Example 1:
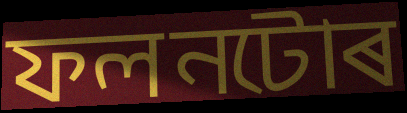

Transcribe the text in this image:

ফলনটোৰ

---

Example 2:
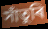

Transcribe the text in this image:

সাঁতুৰি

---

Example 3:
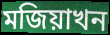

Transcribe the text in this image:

মজিয়াখন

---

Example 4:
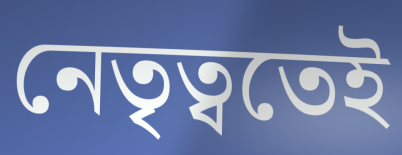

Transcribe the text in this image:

নেতৃত্বতেই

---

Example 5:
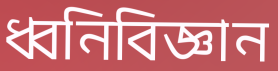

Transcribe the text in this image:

ধ্বনিবিজ্ঞান